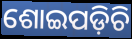
ଶୋଇପଡ଼ିଚି